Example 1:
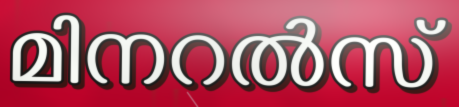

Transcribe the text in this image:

മിനറൽസ്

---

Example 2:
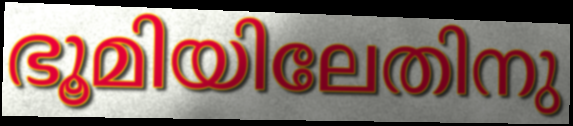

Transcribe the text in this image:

ഭൂമിയിലേതിനു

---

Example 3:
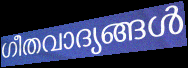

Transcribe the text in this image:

ഗീതവാദ്യങ്ങൾ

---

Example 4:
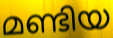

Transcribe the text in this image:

മണ്ടിയ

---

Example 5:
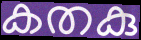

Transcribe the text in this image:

കതകു